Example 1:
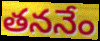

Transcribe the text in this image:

తననేం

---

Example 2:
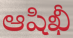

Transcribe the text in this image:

ఆషిఖీ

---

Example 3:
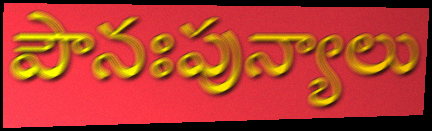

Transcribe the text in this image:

పౌనఃపున్యాలు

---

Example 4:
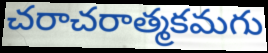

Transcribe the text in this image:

చరాచరాత్మకమగు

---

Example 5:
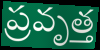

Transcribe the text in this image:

ప్రవృత్త